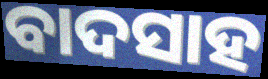
ବାଦସାହ